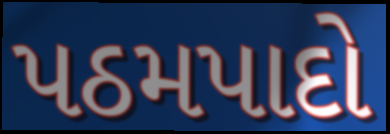
પઠમપાદો